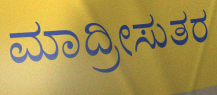
ಮಾದ್ರೀಸುತರ